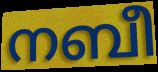
നബീ